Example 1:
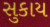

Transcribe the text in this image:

સુકાય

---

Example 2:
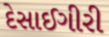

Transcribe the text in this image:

દેસાઈગીરી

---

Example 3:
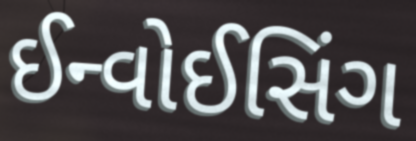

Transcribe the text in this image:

ઈન્વોઈસિંગ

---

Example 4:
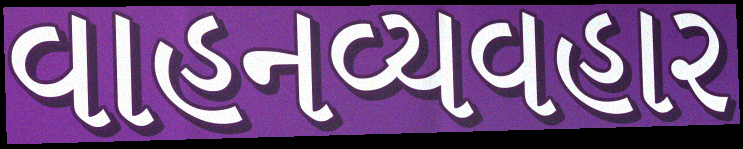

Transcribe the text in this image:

વાહનવ્યવહાર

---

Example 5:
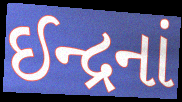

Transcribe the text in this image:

ઈન્દ્રનાં